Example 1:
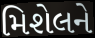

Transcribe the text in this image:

મિશેલને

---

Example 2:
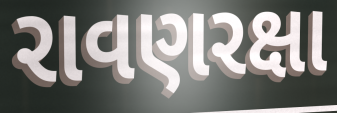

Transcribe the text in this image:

રાવણરક્ષા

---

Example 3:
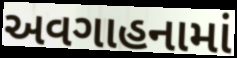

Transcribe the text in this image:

અવગાહનામાં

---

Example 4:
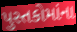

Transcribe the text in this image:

પુસ્તકોમાંના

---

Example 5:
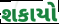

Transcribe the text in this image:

શકાયો